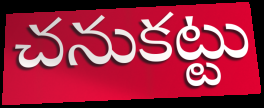
చనుకట్టు